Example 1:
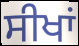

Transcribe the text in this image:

ਸੀਖਾਂ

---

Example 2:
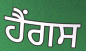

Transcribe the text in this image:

ਹੈਂਗਸ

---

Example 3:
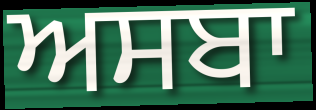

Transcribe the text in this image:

ਅਸਬਾ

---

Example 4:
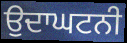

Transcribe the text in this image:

ਉਦਾਘਟਨੀ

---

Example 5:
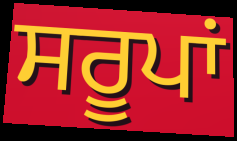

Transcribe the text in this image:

ਸਰੂਪਾਂ